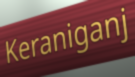
Keraniganj